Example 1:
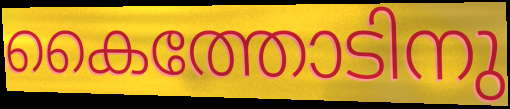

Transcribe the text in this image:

കൈത്തോടിനു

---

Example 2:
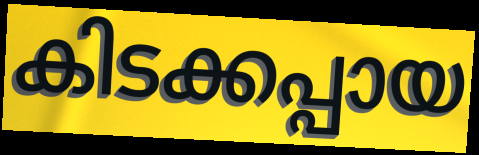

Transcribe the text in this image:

കിടക്കപ്പായ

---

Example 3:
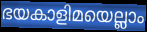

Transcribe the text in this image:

ഭയകാളിമയെല്ലാം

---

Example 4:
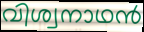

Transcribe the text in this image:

വിശ്വനാഥൻ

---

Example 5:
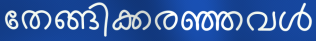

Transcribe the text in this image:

തേങ്ങിക്കരഞ്ഞവൾ